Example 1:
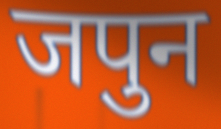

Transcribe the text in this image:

जपुन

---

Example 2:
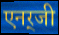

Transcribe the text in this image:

एनर्जी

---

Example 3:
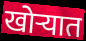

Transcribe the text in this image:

खोर्‍यात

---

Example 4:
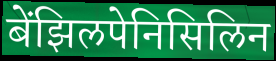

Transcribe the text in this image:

बेंझिलपेनिसिलिन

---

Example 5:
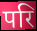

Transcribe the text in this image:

परि